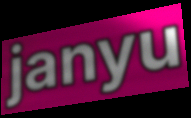
janyu